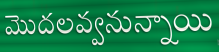
మొదలవ్వనున్నాయి